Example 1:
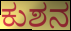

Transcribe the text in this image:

ಕುಶನ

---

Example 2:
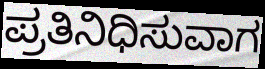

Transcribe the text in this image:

ಪ್ರತಿನಿಧಿಸುವಾಗ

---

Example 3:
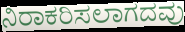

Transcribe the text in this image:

ನಿರಾಕರಿಸಲಾಗದವು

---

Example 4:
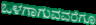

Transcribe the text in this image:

ಒಳಗಾಗುವವರೆಗೂ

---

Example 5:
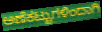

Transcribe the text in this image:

ಅಣೆಕಟ್ಟುಗಳಿಂದಾಗಿ